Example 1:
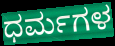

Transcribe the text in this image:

ಧರ್ಮಗಳ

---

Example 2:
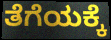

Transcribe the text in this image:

ತೆಗೆಯಕ್ಕೆ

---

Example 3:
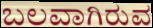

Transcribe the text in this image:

ಬಲವಾಗಿರುವ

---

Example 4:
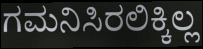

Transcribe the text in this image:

ಗಮನಿಸಿರಲಿಕ್ಕಿಲ್ಲ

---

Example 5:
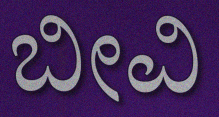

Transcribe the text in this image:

ಬೀವಿ